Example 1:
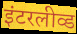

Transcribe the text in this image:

इंटरलीव्ड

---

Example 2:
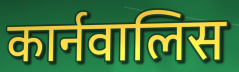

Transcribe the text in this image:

कार्नवालिस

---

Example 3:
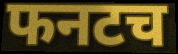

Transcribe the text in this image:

फनटच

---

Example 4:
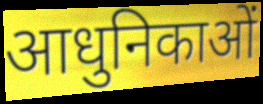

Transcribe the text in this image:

आधुनिकाओं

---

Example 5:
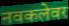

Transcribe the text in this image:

नवकलेवर